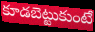
కూడబెట్టుకుంటే